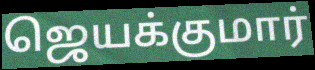
ஜெயக்குமார்